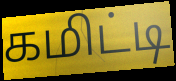
கமிட்டி